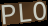
PLO